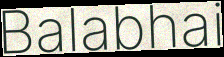
Balabhai